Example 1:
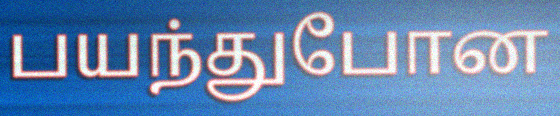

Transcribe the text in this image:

பயந்துபோன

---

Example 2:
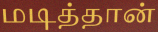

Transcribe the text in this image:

மடித்தான்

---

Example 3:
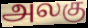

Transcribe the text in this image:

அலகு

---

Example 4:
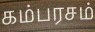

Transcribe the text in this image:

கம்பரசம்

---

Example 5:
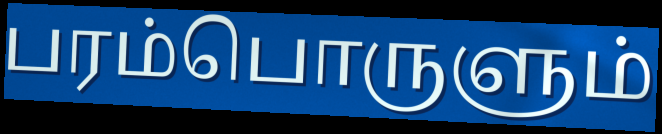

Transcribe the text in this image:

பரம்பொருளும்